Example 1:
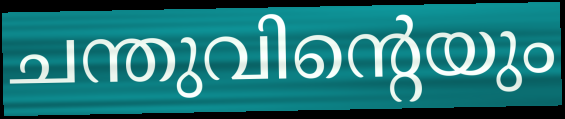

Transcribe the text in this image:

ചന്തുവിന്റെയും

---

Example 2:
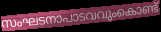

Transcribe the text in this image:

സംഘടനാപാടവവുംകൊണ്ട്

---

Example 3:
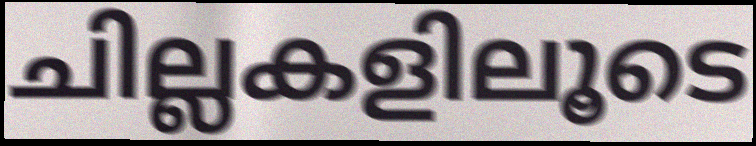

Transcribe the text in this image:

ചില്ലകളിലൂടെ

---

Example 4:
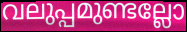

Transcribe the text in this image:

വലുപ്പമുണ്ടല്ലോ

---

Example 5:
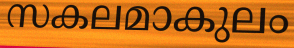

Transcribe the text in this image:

സകലമാകുലം